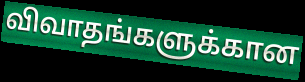
விவாதங்களுக்கான